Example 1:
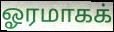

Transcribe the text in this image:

ஓரமாகக்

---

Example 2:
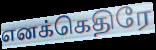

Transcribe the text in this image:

எனக்கெதிரே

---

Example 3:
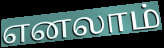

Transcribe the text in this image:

எனலாம்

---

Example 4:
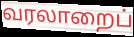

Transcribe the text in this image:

வரலாறைப்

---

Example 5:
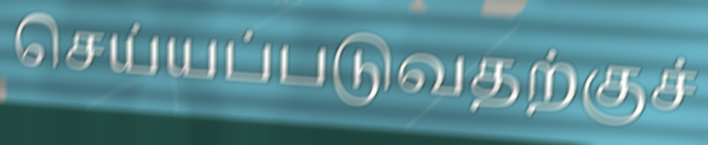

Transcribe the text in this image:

செய்யப்படுவதற்குச்